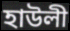
হাউলী